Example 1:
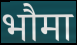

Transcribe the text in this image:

भौमा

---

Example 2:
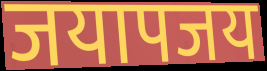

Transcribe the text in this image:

जयापजय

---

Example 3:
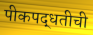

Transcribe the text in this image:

पीकपद्धतीची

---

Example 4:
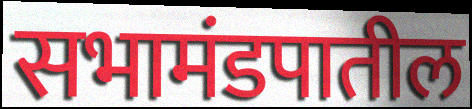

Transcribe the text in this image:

सभामंडपातील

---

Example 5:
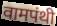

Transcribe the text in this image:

वामपंथी